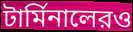
টার্মিনালেরও